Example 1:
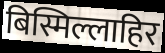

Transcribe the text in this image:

बिस्मिल्लाहिर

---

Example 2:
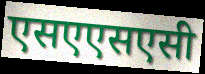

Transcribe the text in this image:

एसएएसएसी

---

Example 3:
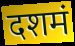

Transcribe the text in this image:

दशमं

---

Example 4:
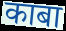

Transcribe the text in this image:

काबा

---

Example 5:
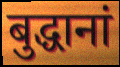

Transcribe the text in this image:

बुद्धानां